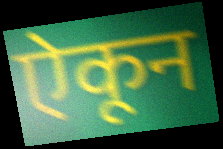
ऐकून